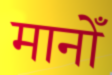
मानोँ